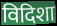
विदिशा